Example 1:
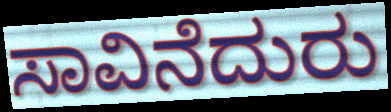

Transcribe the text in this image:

ಸಾವಿನೆದುರು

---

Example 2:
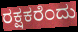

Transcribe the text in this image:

ರಕ್ಷಕರೆಂದು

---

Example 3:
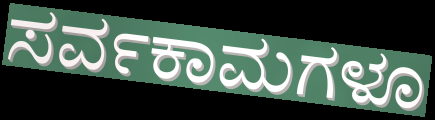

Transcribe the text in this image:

ಸರ್ವಕಾಮಗಳೂ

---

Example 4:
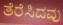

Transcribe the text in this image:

ತೆರೆಸಿದವು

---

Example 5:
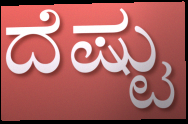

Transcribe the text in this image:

ದೆಷ್ಟು